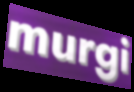
murgi